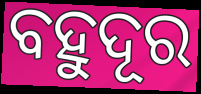
ବହୁଦୂର